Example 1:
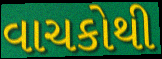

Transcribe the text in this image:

વાચકોથી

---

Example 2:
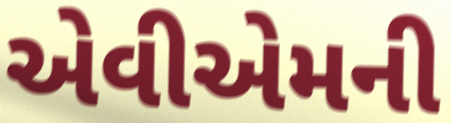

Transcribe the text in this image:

એવીએમની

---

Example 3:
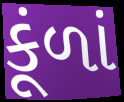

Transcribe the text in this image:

કૂંળાં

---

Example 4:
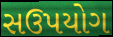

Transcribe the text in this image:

સઉપયોગ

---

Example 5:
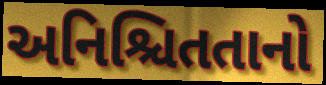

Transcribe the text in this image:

અનિશ્ચિતતાનો